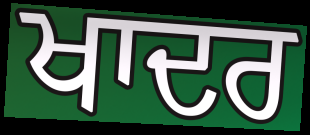
ਖਾਦਰ